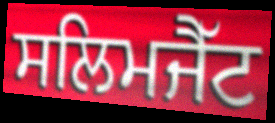
ਸਲਿਮਜੈੱਟ